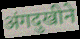
अंगदुखीने